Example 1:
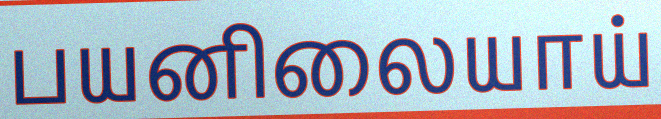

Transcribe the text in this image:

பயனிலையாய்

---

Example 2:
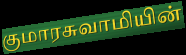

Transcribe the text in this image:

குமாரசுவாமியின்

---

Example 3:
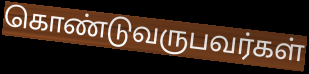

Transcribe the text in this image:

கொண்டுவருபவர்கள்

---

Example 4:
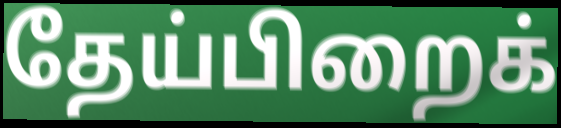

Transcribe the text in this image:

தேய்பிறைக்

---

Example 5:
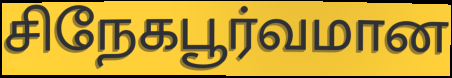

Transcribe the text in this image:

சிநேகபூர்வமான